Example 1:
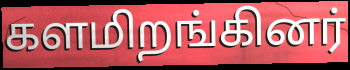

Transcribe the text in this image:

களமிறங்கினர்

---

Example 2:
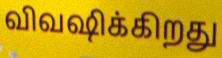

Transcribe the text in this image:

விவஷிக்கிறது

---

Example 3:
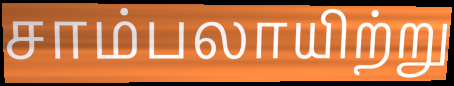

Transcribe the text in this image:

சாம்பலாயிற்று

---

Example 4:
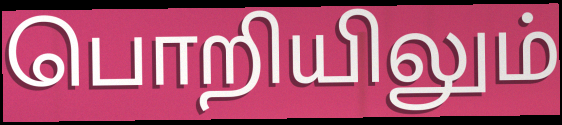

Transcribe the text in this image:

பொறியிலும்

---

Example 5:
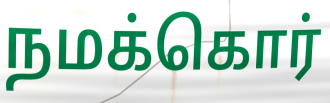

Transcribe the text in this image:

நமக்கொர்